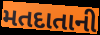
મતદાતાની